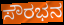
ಸೌರಭನ